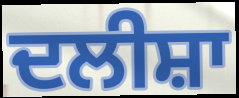
ਦਲੀਸ਼ਾ